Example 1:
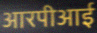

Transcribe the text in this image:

आरपीआई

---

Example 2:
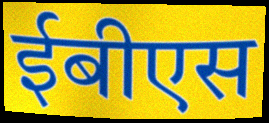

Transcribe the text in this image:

ईबीएस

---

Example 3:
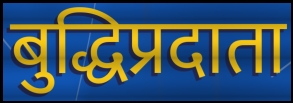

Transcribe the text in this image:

बुद्धिप्रदाता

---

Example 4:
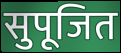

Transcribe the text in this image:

सुपूजित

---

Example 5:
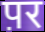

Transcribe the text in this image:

प़र